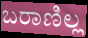
ಬರಾಣಿಲ್ಲ